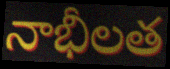
నాభీలత